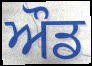
ਔਡ